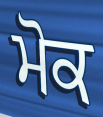
ਮੋਕ